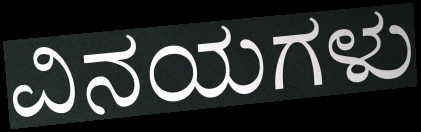
ವಿನಯಗಳು